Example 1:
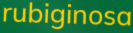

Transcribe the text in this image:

rubiginosa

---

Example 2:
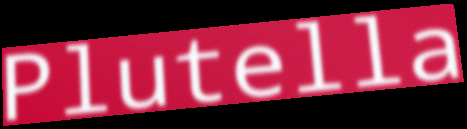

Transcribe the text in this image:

Plutella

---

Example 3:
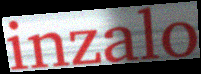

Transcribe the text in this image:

inzalo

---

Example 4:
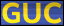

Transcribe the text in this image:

GUC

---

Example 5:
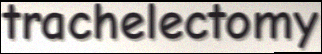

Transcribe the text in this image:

trachelectomy